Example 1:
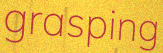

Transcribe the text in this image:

grasping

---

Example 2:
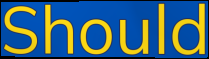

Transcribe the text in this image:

Should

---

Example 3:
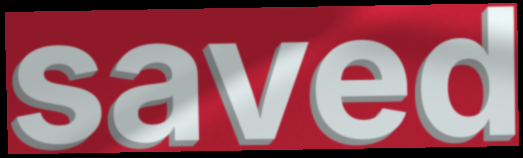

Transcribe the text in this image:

saved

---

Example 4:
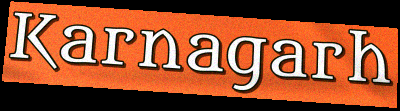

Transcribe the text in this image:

Karnagarh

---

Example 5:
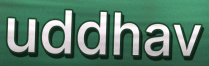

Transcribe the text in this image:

uddhav